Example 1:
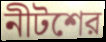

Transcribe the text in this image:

নীটশের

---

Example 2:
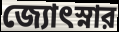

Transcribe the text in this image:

জ্যোৎস্নার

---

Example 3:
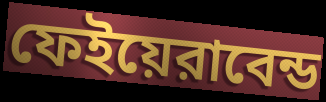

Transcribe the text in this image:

ফেইয়েরাবেন্ড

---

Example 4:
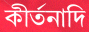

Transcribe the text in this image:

কীর্তনাদি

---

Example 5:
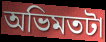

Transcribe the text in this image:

অভিমতটা